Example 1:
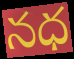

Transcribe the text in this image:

నధ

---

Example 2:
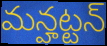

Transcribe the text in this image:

మన్హట్టన్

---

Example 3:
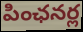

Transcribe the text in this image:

పింఛనర్ల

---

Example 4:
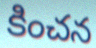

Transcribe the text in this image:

కించన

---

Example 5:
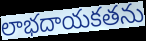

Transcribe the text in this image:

లాభదాయకతను